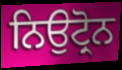
ਨਿਉਟ੍ਰੋਨ